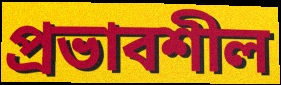
প্রভাবশীল